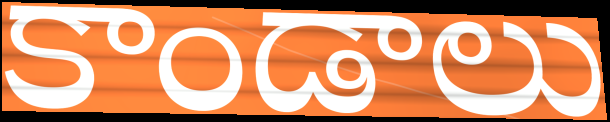
కాండాలు